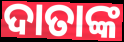
ଦାତାଙ୍କ